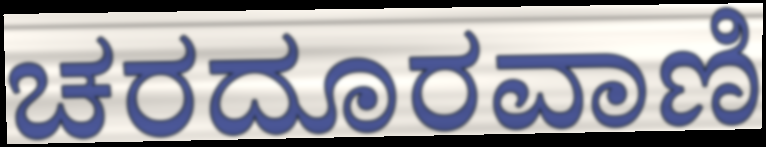
ಚರದೂರವಾಣಿ